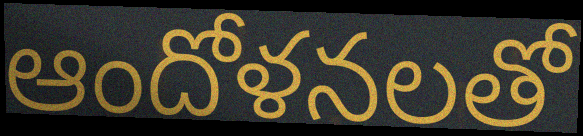
ఆందోళనలతో